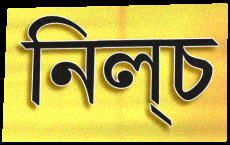
নিল্চ